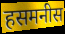
हसमनीस